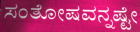
ಸಂತೋಷವನ್ನಷ್ಟೇ